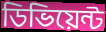
ডিভিয়েন্ট